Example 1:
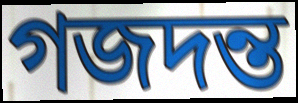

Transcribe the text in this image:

গজদন্ত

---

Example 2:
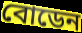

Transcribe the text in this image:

বোডেন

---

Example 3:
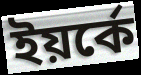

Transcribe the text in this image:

ইয়র্কে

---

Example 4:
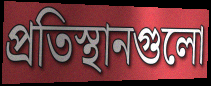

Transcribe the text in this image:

প্রতিস্থানগুলো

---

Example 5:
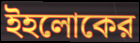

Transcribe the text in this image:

ইহলোকের